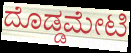
ದೊಡ್ಡಮೇಟಿ